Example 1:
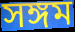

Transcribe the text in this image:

সঙ্গম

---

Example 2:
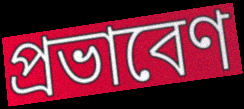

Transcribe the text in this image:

প্রভাবেণ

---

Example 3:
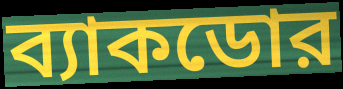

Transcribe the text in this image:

ব্যাকডোর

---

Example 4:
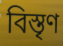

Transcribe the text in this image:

বিস্তৃণ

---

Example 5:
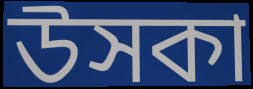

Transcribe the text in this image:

উসকা